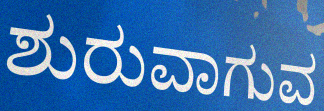
ಶುರುವಾಗುವ